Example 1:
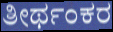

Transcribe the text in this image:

ತೀರ್ಥಂಕರ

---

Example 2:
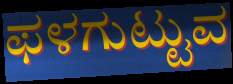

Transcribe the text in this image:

ಫಳಗುಟ್ಟುವ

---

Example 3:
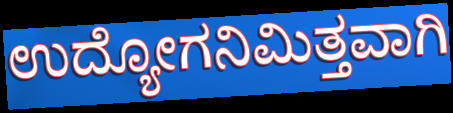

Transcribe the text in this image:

ಉದ್ಯೋಗನಿಮಿತ್ತವಾಗಿ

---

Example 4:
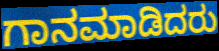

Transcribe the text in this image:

ಗಾನಮಾಡಿದರು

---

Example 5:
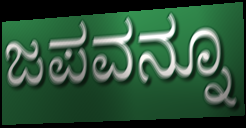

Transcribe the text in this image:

ಜಪವನ್ನೂ